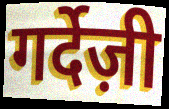
गर्देज़ी